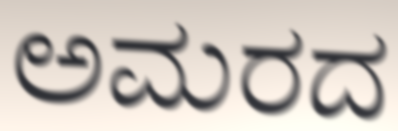
ಅಮರದ